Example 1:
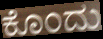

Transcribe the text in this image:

ಕೊಂದು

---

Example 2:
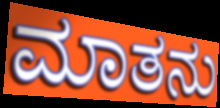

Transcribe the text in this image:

ಮಾತನು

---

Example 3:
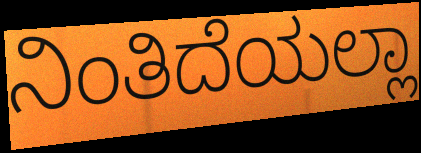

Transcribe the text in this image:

ನಿಂತಿದೆಯಲ್ಲಾ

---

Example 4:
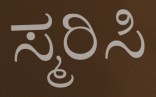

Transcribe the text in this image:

ಸ್ಮರಿಸಿ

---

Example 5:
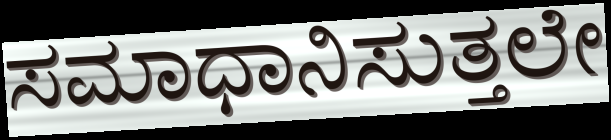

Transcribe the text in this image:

ಸಮಾಧಾನಿಸುತ್ತಲೇ